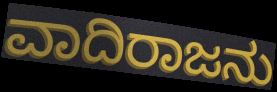
ವಾದಿರಾಜನು